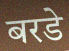
बरडे